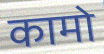
कामो